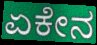
ಏಕೇನ